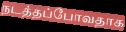
நடத்தப்போவதாக